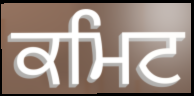
ਕਮਿਟ